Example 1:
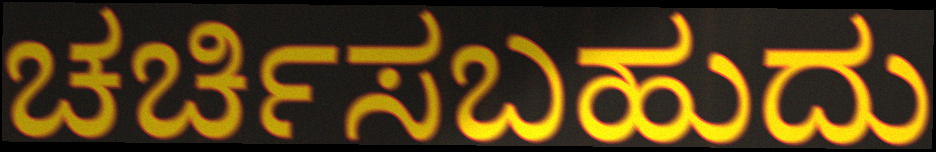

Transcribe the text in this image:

ಚರ್ಚಿಸಬಹುದು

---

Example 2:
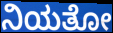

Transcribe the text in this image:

ನಿಯತೋ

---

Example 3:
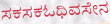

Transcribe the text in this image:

ಸಕಸಕಓಧಿವಸೇನ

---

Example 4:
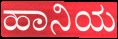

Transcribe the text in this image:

ಹಾನಿಯ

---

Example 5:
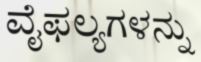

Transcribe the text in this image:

ವೈಫಲ್ಯಗಳನ್ನು